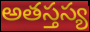
అతస్తస్య